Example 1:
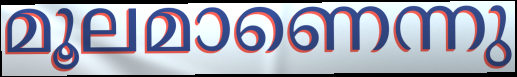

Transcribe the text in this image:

മൂലമാണെന്നു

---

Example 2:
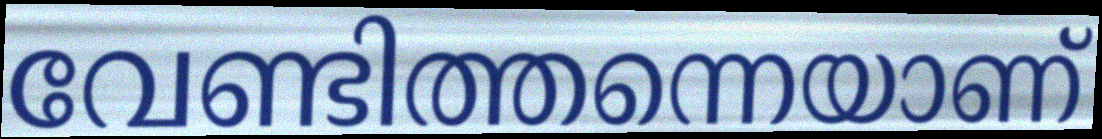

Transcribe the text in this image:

വേണ്ടിത്തന്നെയാണ്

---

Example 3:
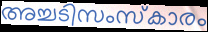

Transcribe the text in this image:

അച്ചടിസംസ്കാരം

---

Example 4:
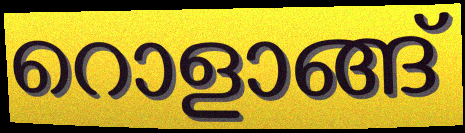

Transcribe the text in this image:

റൊളാങ്ങ്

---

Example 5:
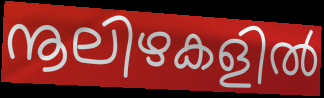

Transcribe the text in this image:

നൂലിഴകളിൽ